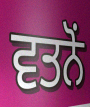
ਵਤਨੋਂ